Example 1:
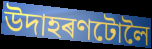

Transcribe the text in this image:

উদাহৰণটোলৈ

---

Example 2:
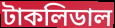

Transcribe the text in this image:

টাকলিডাল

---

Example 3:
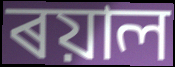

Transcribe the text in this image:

ৰয়াল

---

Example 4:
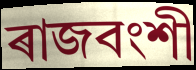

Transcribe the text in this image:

ৰাজবংশী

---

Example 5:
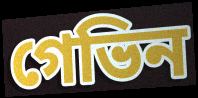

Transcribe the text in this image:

গেভিন